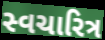
સ્વચારિત્ર